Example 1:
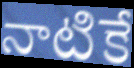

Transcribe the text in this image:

నాటికే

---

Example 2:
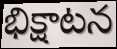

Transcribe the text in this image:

భిక్షాటన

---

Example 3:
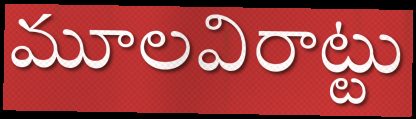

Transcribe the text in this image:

మూలవిరాట్టు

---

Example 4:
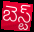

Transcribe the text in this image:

బెస్ట్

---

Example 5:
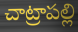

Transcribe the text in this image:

చాట్రాపల్లి